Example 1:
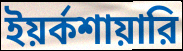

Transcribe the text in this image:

ইয়র্কশায়ারি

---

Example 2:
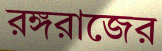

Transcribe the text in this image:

রঙ্গরাজের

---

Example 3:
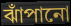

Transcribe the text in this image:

ঝাঁপানো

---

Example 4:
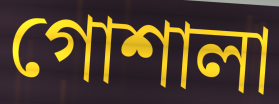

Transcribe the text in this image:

গোশালা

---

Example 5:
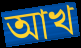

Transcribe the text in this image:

আখ